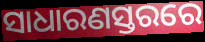
ସାଧାରଣସ୍ତରରେ